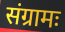
संग्रामः